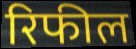
रिफील